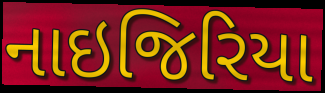
નાઇજિરિયા